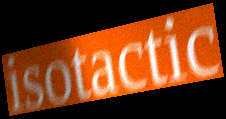
isotactic